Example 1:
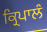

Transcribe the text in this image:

ਕ੍ਰਿਪਾਲੰ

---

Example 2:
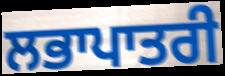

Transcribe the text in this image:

ਲਭਾਪਾਤਰੀ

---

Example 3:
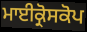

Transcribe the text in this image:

ਮਾਈਕ੍ਰੋਸਕੋਪ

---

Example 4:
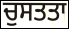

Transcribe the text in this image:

ਚੁਸਤਤਾ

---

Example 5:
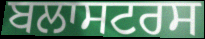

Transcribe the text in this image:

ਬਲਾਸਟਰਸ